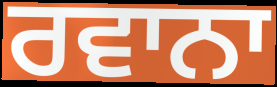
ਰਵਾਨਾ